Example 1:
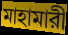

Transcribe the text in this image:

মাহামারী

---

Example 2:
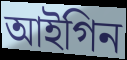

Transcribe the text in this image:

আইগিন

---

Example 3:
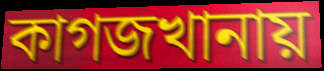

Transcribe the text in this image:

কাগজখানায়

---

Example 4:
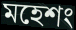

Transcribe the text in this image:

মহেশং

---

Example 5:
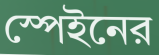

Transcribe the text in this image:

স্পেইনের